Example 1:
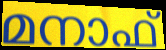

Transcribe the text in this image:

മനാഫ്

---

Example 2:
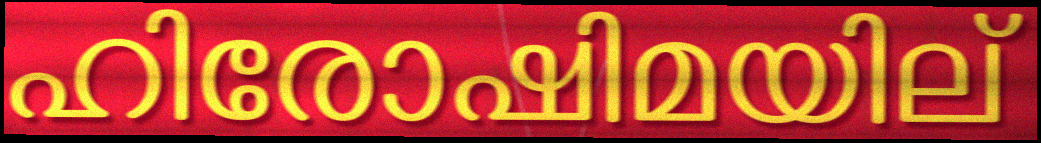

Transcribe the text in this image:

ഹിരോഷിമയില്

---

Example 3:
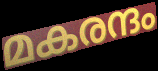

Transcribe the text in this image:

മകരന്ദം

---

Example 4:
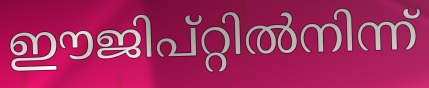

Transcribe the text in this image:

ഈജിപ്റ്റിൽനിന്ന്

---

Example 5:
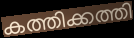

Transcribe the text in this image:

കത്തിക്കത്തി